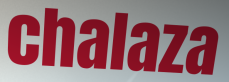
chalaza